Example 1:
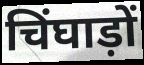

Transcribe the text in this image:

चिंघाड़ों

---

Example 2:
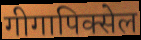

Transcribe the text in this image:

गीगापिक्सेल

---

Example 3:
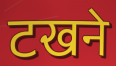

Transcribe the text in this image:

टखने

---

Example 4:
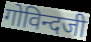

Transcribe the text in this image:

गोविन्दजी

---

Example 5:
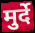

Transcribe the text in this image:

मुर्दे